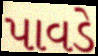
પાવડે